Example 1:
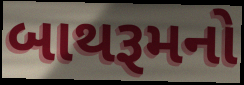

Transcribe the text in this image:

બાથરૂમનો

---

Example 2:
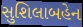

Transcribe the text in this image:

સુશિલાબહેન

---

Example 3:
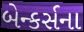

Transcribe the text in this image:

બેન્કર્સના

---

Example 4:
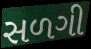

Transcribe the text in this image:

સળગી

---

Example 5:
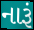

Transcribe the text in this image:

નારૂં